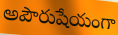
అపౌరుషేయంగా